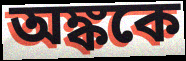
অঙ্ককে